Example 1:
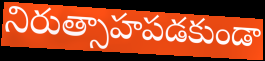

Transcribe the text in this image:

నిరుత్సాహపడకుండా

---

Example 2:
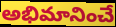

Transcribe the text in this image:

అభిమానించే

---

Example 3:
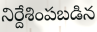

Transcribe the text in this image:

నిర్దేశింపబడిన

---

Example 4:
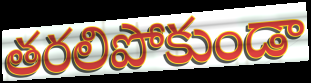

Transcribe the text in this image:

తరలిపోకుండా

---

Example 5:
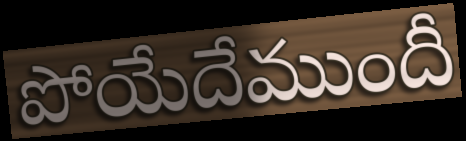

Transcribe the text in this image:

పోయేదేముందీ